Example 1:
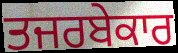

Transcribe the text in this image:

ਤਜਰਬੇਕਾਰ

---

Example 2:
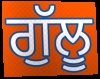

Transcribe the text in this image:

ਗੁੱਲੂ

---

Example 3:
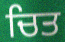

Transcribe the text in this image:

ਚਿਤ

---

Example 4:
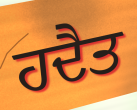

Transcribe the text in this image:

ਹਦੈਤ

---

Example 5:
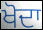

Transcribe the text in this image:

ਖੋਦਾ